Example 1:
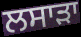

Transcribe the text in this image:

ਲਸਾੜਾ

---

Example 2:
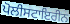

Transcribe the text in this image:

ਪੋਲੀਸਟਾਇਰੀਨ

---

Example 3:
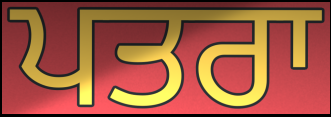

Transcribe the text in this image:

ਪਤਰਾ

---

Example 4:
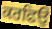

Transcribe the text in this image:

ਕਰਫਿਉ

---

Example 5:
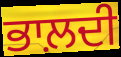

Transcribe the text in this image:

ਭਾਲ਼ਦੀ